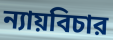
ন্যায়বিচার